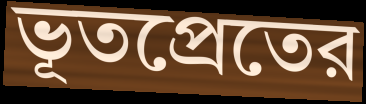
ভূতপ্রেতের